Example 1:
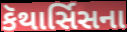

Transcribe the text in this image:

કૅથાર્સિસના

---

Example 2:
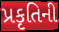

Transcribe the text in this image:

પ્રકૃતિની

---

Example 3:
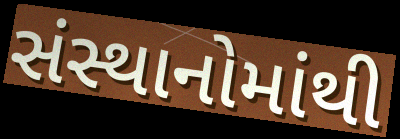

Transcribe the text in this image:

સંસ્થાનોમાંથી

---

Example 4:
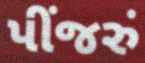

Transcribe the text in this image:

પીંજરું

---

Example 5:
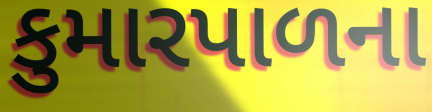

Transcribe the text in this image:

કુમારપાળના